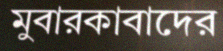
মুবারকাবাদের